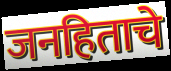
जनहिताचे